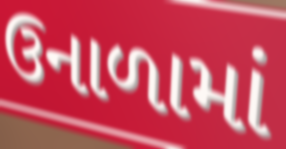
ઉનાળામાં